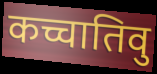
कच्चातिवु